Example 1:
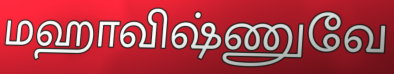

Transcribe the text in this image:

மஹாவிஷ்ணுவே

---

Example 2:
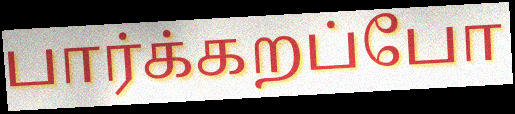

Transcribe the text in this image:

பார்க்கறப்போ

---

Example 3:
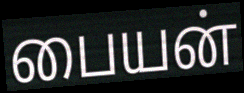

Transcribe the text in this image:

பையன்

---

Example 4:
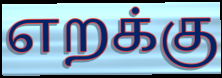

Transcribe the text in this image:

எறக்கு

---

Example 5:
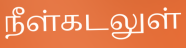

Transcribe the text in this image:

நீள்கடலுள்